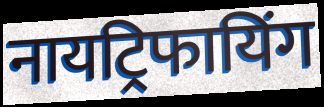
नायट्रिफायिंग